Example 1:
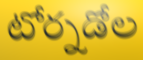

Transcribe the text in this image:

టోర్నడోల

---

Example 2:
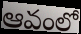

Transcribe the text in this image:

ఆవంలో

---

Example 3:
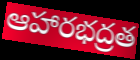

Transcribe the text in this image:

ఆహారభద్రత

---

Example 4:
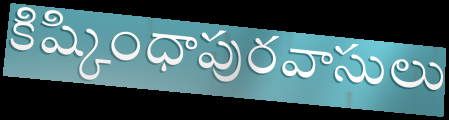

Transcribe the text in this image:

కిష్కింధాపురవాసులు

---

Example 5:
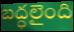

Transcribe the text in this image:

బద్ధలైంది